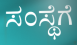
ಸಂಸ್ಥೆಗೆ